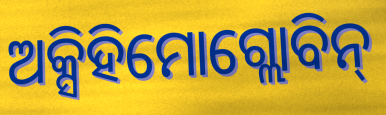
ଅକ୍ସିହିମୋଗ୍ଲୋବିନ୍